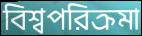
বিশ্বপরিক্রমা